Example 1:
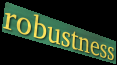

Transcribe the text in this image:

robustness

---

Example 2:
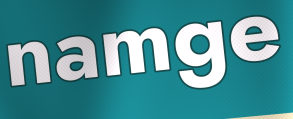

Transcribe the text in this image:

namge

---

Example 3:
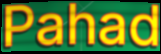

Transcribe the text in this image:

Pahad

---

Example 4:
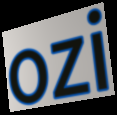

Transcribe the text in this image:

ozi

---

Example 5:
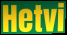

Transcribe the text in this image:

Hetvi